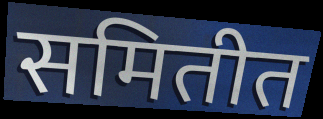
समितीत